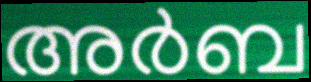
അർബ